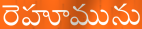
రెహూమును